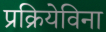
प्रक्रियेविना